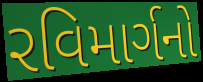
રવિમાર્ગનો